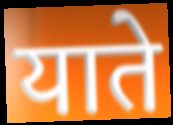
याते